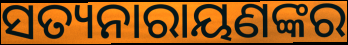
ସତ୍ୟନାରାୟଣଙ୍କର